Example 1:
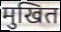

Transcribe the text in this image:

मुखित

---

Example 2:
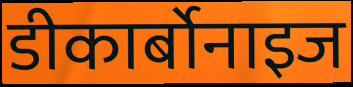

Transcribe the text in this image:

डीकार्बोनाइज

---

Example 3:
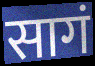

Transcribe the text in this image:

सागं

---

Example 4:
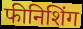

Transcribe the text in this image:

फीनिशिंग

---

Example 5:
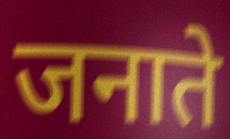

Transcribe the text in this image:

जनाते